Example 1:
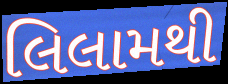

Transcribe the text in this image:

લિલામથી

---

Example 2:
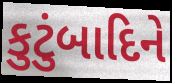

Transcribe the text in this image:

કુટુંબાદિને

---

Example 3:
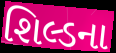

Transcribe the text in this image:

શિલ્ડના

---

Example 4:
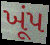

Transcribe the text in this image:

ખૂંપ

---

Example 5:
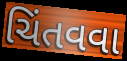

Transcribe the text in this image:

ચિંતવવા